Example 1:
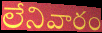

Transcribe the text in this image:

లేనివారం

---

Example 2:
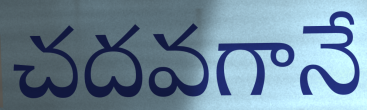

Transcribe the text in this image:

చదవగానే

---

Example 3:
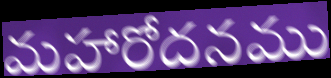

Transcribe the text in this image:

మహారోదనము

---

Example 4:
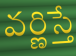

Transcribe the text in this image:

వర్ణిస్తే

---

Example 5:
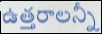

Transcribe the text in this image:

ఉత్తరాలన్నీ